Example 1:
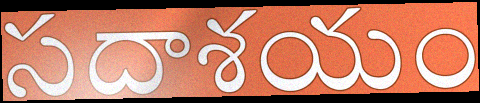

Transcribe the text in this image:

సదాశయం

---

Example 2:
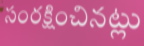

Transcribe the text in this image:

సంరక్షించినట్లు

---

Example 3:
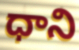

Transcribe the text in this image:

ధాని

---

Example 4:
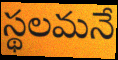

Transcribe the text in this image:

స్థలమనే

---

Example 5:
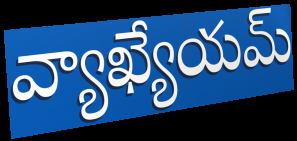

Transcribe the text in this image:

వ్యాఖ్యేయమ్